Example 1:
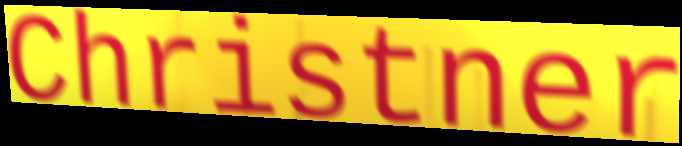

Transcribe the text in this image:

Christner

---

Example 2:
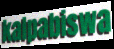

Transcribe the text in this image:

kalpabiswa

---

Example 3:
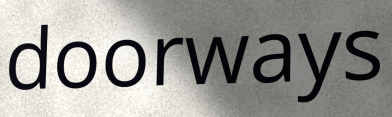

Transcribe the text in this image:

doorways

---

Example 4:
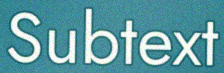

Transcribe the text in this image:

Subtext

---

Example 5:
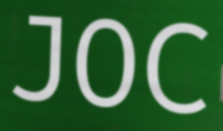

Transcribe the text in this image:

JOC